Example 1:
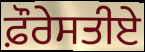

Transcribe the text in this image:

ਫ਼ੌਰੇਸਤੀਏ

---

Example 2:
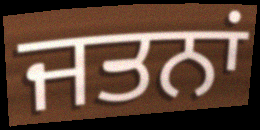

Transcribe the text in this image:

ਜਤਨਾਂ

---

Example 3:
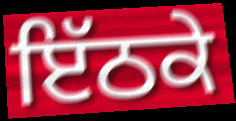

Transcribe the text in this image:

ਇੱਠਕੇ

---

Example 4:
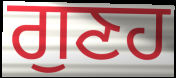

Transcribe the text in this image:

ਗੁਣਹ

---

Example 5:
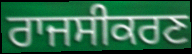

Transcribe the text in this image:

ਰਾਜਸੀਕਰਣ